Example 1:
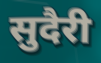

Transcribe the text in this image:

सुदैरी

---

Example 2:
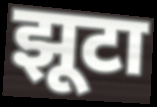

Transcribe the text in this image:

झूटा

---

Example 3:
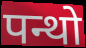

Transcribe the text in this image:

पन्थो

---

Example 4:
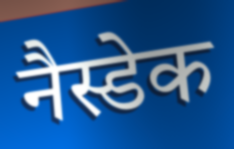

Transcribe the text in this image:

नैस्डेक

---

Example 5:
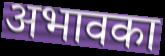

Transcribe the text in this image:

अभावका